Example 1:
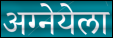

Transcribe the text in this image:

अग्नेयेला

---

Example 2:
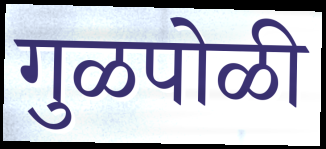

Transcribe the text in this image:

गुळपोळी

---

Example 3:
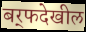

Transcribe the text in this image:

बर्फदेखील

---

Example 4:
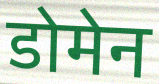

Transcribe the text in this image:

डोमेन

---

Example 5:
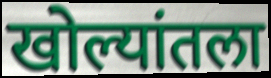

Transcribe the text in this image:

खोल्यांतला